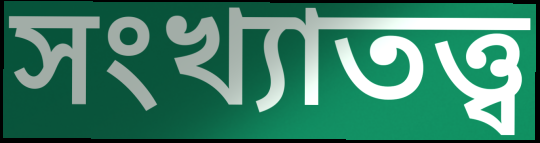
সংখ্যাতত্ত্ব